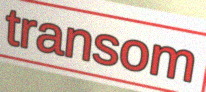
transom